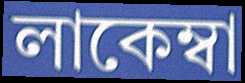
লাকেম্বা